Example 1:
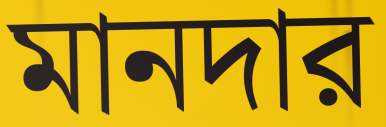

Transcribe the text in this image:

মানদার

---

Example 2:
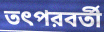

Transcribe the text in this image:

তৎপরবর্তী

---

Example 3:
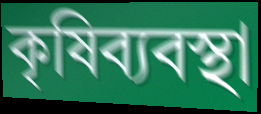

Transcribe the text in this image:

কৃষিব্যবস্থা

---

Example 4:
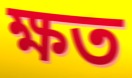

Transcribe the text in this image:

ক্ষত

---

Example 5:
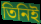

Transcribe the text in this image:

তিনিই